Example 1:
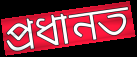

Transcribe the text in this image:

প্রধানত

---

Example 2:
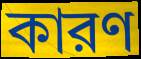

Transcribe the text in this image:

কারণ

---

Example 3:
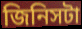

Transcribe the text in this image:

জিনিসটা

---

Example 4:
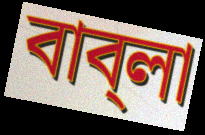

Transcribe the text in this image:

বাব্‌লা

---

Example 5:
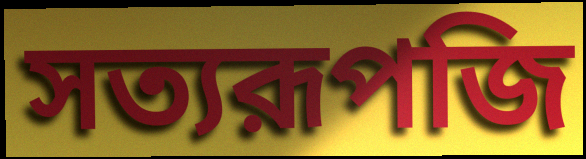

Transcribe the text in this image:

সত্যরূপজি